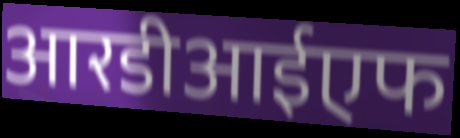
आरडीआईएफ